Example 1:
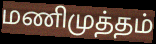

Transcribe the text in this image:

மணிமுத்தம்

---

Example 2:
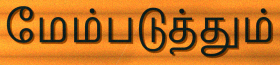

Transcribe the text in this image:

மேம்படுத்தும்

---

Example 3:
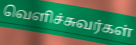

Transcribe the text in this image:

வெளிச்சுவர்கள்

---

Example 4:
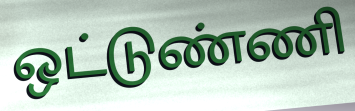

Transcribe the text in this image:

ஒட்டுண்ணி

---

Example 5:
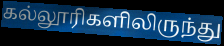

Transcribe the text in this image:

கல்லூரிகளிலிருந்து